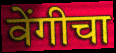
वेंगीचा